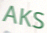
AKS